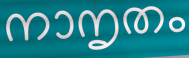
നാനൃതം